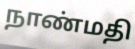
நாண்மதி